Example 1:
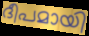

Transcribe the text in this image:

ദീപമായി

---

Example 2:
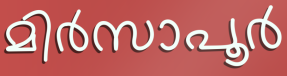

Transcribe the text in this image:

മിർസാപൂർ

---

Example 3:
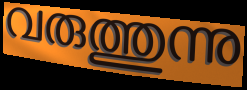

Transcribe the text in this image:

വരുത്തുന്നു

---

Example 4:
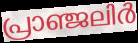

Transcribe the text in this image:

പ്രാഞ്ജലിർ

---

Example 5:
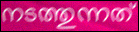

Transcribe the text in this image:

നടത്തുന്നത്